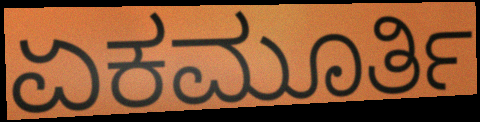
ಏಕಮೂರ್ತಿ